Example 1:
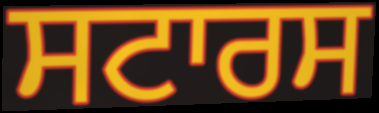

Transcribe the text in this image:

ਸਟਾਰਸ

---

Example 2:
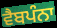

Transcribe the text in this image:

ਵੈਬਪੰਨਾ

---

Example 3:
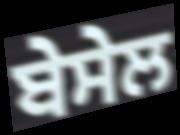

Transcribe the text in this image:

ਬੇਸੇਲ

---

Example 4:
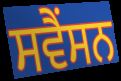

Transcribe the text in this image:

ਸਵੈਂਸਨ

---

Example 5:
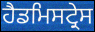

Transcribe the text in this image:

ਹੈਡਮਿਸਟ੍ਰੇਸ